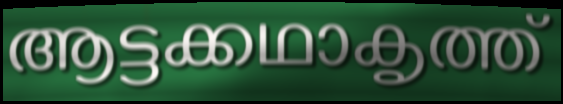
ആട്ടക്കഥാകൃത്ത്